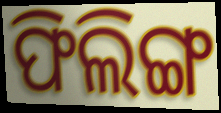
ଫିଲିଙ୍ଗ